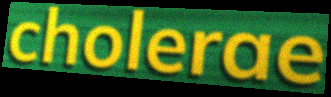
cholerae